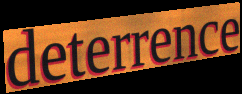
deterrence